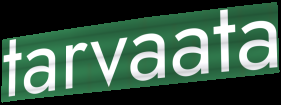
tarvaata